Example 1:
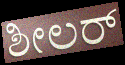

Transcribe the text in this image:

ಶೀಲರ್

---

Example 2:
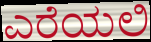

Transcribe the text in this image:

ಎರೆಯಲಿ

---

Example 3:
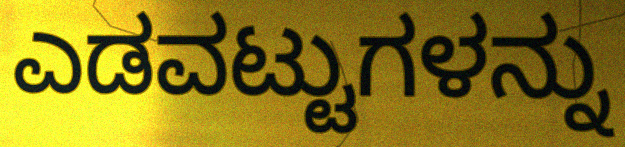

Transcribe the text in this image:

ಎಡವಟ್ಟುಗಳನ್ನು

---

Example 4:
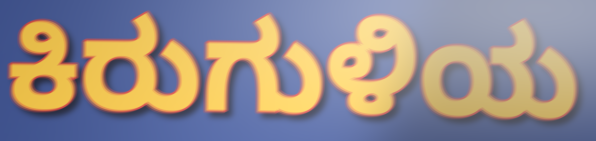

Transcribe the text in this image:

ಕಿರುಗುಳಿಯ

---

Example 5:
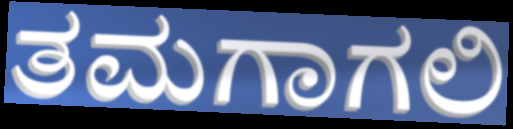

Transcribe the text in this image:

ತಮಗಾಗಲಿ